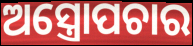
ଅସ୍ତ୍ରୋପଚାର